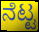
ನೆಟ್ಟ